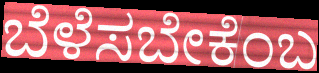
ಬೆಳೆಸಬೇಕೆಂಬ